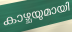
കാഴ്ചയുമായി